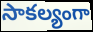
సాకల్యంగా